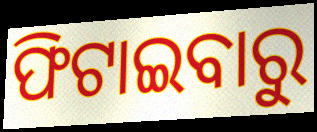
ଫିଟାଇବାରୁ